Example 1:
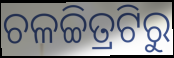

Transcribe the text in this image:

ଚଳଚ୍ଚିତ୍ରଟିରୁ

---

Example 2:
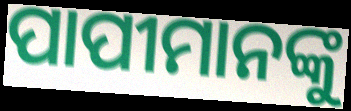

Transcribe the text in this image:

ପାପୀମାନଙ୍କୁ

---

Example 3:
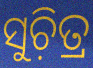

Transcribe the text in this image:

ସୁଚ଼ିତ୍ର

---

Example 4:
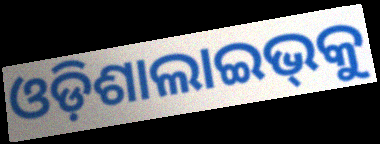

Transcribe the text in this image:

ଓଡ଼ିଶାଲାଇଭ୍‌କୁ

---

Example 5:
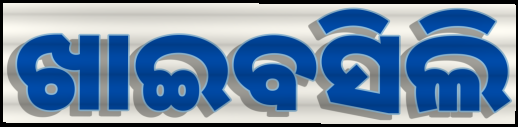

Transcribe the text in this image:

ଖାଇବସିଲି